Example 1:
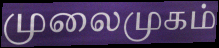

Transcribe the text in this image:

முலைமுகம்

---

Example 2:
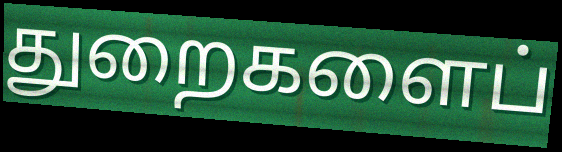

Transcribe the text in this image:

துறைகளைப்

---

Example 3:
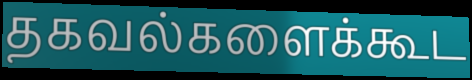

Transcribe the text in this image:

தகவல்களைக்கூட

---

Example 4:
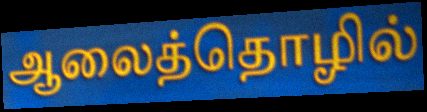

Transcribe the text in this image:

ஆலைத்தொழில்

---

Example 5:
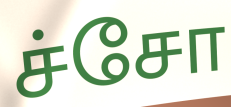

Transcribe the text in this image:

ச்சோ